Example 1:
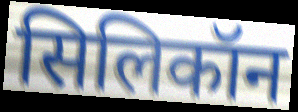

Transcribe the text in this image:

सिलिकॉन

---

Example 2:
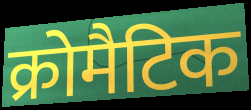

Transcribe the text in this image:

क्रोमैटिक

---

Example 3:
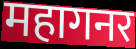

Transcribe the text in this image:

महागनर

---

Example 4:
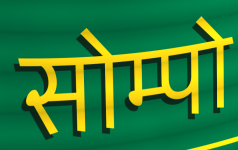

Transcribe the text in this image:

सोम्पो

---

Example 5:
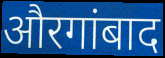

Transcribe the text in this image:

औरगांबाद